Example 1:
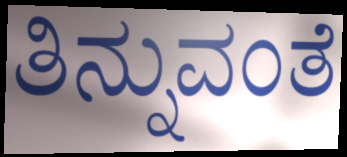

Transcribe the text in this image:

ತಿನ್ನುವಂತೆ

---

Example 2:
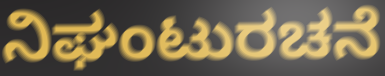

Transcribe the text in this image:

ನಿಘಂಟುರಚನೆ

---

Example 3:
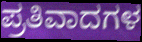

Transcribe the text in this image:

ಪ್ರತಿವಾದಗಳ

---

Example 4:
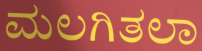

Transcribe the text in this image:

ಮಲಗಿತಲಾ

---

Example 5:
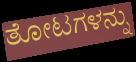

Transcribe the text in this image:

ತೋಟಗಳನ್ನು